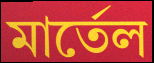
মার্তেল